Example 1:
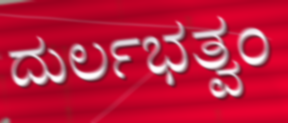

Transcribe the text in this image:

ದುರ್ಲಭತ್ವಂ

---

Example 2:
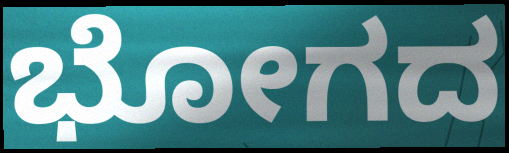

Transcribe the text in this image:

ಭೋಗದ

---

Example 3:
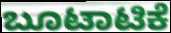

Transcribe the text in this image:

ಬೂಟಾಟಿಕೆ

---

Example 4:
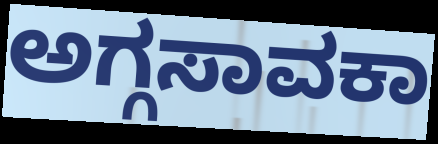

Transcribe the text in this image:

ಅಗ್ಗಸಾವಕಾ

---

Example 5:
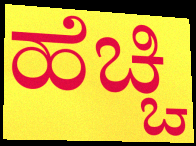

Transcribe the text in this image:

ಹೆಚ್ಚಿ